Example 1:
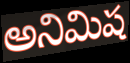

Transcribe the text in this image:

అనిమిష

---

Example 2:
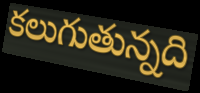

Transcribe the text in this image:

కలుగుతున్నది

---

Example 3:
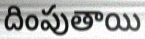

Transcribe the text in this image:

దింపుతాయి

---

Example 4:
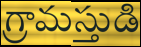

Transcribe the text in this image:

గ్రామస్తుడి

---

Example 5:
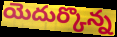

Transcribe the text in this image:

యెదుర్కొన్న